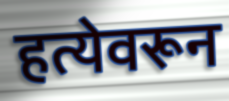
हत्येवरून